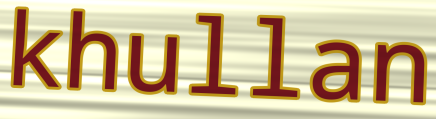
khullan